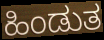
ಹಿಂಡುತ